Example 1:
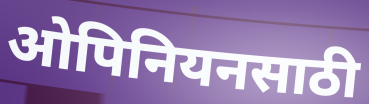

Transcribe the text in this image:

ओपिनियनसाठी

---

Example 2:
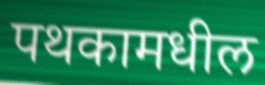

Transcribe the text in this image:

पथकामधील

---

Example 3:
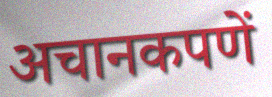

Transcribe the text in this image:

अचानकपणें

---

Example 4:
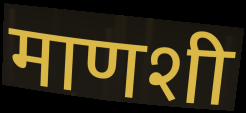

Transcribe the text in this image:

माणशी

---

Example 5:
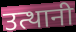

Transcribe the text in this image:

उत्थानी